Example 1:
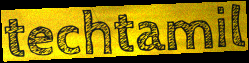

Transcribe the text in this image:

techtamil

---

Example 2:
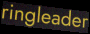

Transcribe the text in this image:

ringleader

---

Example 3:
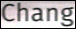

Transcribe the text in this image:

Chang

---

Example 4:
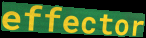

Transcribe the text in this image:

effector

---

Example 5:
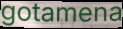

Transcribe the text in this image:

gotamena